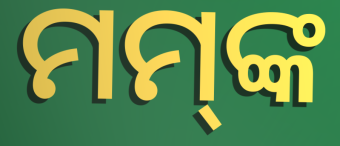
ମମ୍‌ଙ୍କ